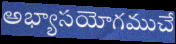
అభ్యాసయోగముచే